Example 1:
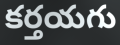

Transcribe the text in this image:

కర్తయగు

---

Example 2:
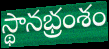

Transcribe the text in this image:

స్థానభ్రంశం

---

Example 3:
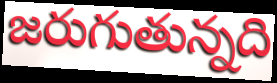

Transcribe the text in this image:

జరుగుతున్నది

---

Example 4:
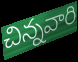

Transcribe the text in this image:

చిన్నవారి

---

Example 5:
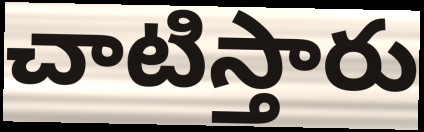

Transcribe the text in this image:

చాటిస్తారు